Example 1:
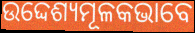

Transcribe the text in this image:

ଉଦ୍ଦେଶ୍ୟମୂଳକଭାବେ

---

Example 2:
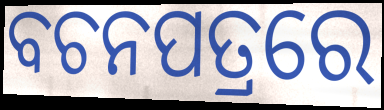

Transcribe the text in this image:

ବଚନପତ୍ରରେ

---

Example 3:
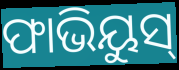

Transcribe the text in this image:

ଫାଭିୟୁସ୍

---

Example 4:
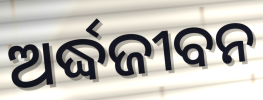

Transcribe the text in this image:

ଅର୍ଦ୍ଧଜୀବନ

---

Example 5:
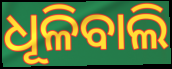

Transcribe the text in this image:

ଧୂଳିବାଲି